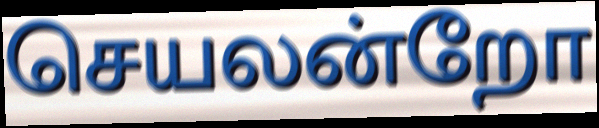
செயலன்றோ